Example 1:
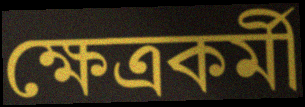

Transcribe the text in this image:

ক্ষেত্ৰকৰ্মী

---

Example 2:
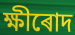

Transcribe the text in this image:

ক্ষীৰোদ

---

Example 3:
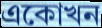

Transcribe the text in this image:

একোখন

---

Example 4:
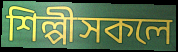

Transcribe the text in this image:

শিল্পীসকলে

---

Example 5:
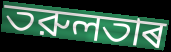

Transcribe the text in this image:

তৰুলতাৰ